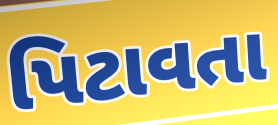
પિટાવતા